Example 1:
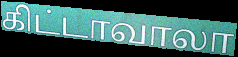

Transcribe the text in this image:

கிட்டாவாலா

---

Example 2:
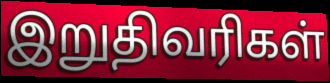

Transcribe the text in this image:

இறுதிவரிகள்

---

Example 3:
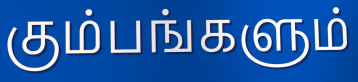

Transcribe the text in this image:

கும்பங்களும்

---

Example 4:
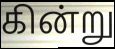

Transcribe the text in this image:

கின்று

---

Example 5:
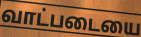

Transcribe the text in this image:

வாட்படையை